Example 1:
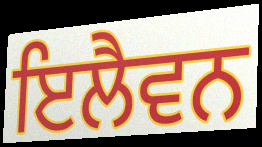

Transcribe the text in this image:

ਇਲੈਵਨ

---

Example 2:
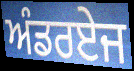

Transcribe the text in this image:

ਅੰਡਰਏਜ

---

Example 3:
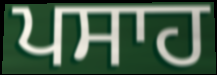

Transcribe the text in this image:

ਪਸਾਹ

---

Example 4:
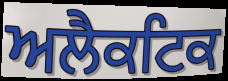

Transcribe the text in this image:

ਅਲੈਕਟਿਕ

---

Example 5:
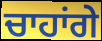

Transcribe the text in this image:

ਚਾਹਾਂਗੇ